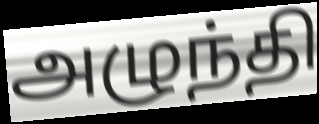
அழுந்தி